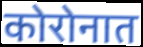
कोरोनात